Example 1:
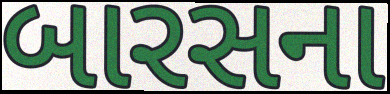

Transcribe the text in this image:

બારસના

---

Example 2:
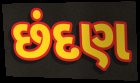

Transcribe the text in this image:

છંદણ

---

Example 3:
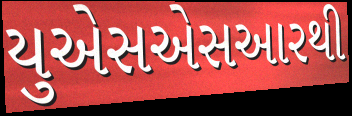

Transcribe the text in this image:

યુએસએસઆરથી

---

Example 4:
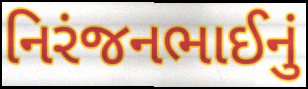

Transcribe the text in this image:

નિરંજનભાઈનું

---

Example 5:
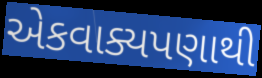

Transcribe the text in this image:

એકવાક્યપણાથી